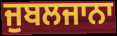
ਜੁਬਲਜਾਨਾ